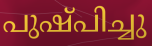
പുഷ്പിച്ചു